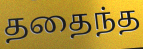
ததைந்த